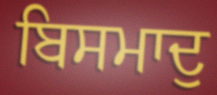
ਬਿਸਮਾਦੁ